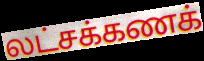
லட்சக்கணக்